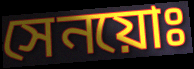
সেনয়োঃ